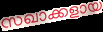
സഖാക്കളായ